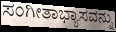
ಸಂಗೀತಾಭ್ಯಾಸವನ್ನು